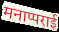
मनाप्पराई